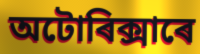
অটোৰিক্সাৰে